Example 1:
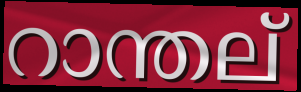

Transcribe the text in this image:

റാന്തല്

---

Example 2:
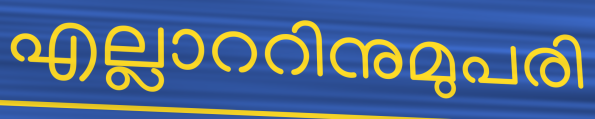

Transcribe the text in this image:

എല്ലാററിനുമുപരി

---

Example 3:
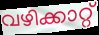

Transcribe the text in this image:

വഴിക്കാറ്റ്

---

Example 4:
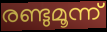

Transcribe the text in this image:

രണ്ടുമൂന്ന്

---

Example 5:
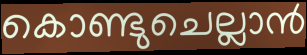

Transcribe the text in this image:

കൊണ്ടുചെല്ലാൻ